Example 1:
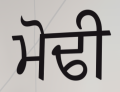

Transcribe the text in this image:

ਮੋਢੀ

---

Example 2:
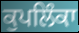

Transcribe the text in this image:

ਕੁਪਲਿੰਕਾ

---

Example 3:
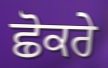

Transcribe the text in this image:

ਛੋਕਰੇ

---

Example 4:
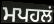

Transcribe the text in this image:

ਮਪਹਲਂ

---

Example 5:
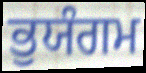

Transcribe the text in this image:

ਭੁਯੰਗਮ